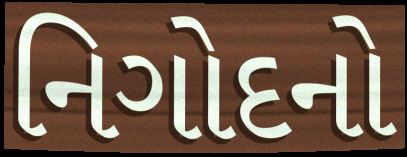
નિગોદનો